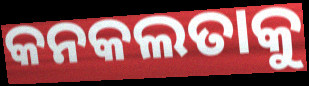
କନକଲତାକୁ